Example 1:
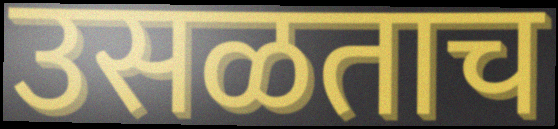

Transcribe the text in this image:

उसळताच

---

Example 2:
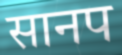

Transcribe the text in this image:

सानप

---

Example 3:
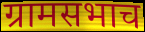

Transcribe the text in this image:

ग्रामसभाच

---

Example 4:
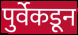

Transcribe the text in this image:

पुर्वेकडून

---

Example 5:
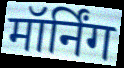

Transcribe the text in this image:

मॉर्निंग